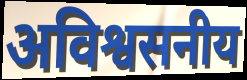
अविश्वसनीय